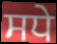
ਸਧੇ